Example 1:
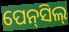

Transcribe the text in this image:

ପେନ୍‌ସିଲ୍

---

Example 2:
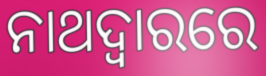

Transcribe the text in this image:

ନାଥଦ୍ୱାରରେ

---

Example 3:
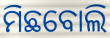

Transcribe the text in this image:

ମିଛବୋଲି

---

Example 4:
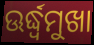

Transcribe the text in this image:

ଊର୍ଦ୍ଧ୍ବମୁଖା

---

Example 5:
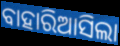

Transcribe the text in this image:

ବାହାରିଆସିଲା